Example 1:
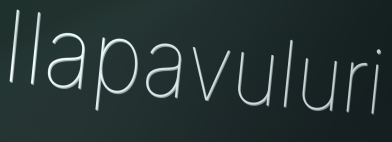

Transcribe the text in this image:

Ilapavuluri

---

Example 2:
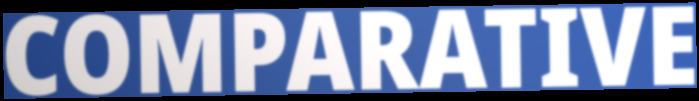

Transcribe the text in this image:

COMPARATIVE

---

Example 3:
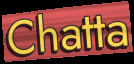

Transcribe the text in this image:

Chatta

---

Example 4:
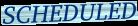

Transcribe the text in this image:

SCHEDULED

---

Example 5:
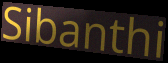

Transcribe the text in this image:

Sibanthi